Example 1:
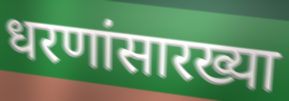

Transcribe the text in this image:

धरणांसारख्या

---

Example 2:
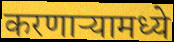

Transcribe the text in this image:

करणाऱ्यामध्ये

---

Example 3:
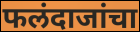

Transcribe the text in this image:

फलंदाजांचा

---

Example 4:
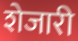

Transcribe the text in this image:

शेजारी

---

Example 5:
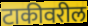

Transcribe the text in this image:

टाकीवरील